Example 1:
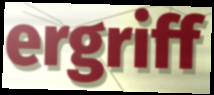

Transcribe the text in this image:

ergriff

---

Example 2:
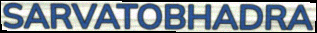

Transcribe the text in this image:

SARVATOBHADRA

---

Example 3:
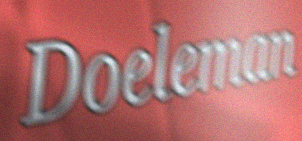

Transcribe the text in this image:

Doeleman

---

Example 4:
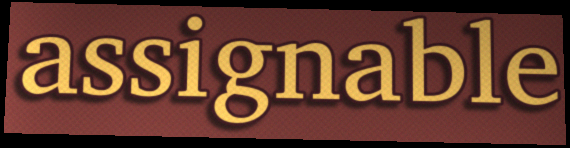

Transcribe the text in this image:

assignable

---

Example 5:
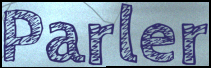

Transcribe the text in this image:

Parler